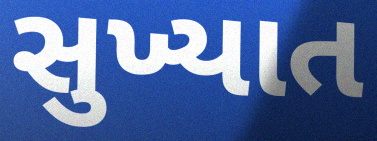
સુખ્યાત